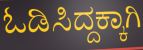
ಓಡಿಸಿದ್ದಕ್ಕಾಗಿ